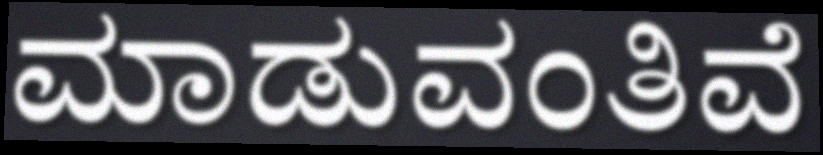
ಮಾಡುವಂತಿವೆ